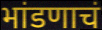
भांडणाचं